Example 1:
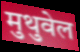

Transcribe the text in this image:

मुथुवेल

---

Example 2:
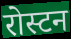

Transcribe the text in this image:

रोस्टन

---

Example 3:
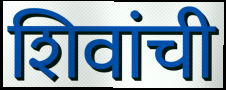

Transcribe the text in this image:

शिवांची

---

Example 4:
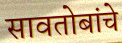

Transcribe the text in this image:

सावतोबांचे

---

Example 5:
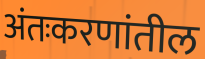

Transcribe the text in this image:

अंतःकरणांतील